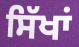
ਸਿੱਖਾਂ